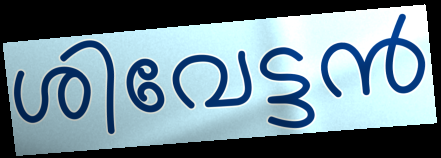
ശിവേട്ടൻ